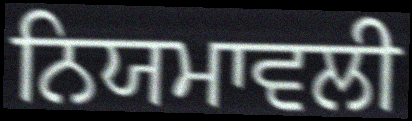
ਨਿਯਮਾਵਲੀ